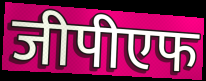
जीपीएफ